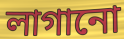
লাগানো